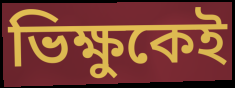
ভিক্ষুকেই